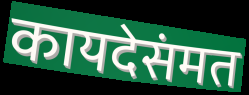
कायदेसंमत